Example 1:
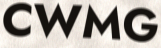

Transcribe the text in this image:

CWMG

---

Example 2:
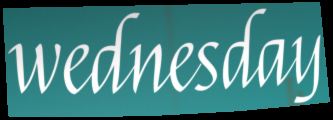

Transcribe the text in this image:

wednesday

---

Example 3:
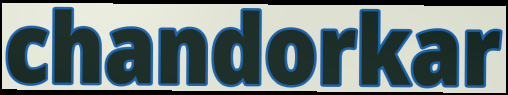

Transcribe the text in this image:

chandorkar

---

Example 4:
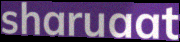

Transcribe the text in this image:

sharuaat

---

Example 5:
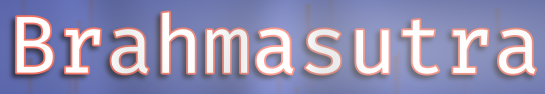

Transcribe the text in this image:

Brahmasutra